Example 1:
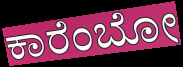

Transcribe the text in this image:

ಕಾರೆಂಬೋ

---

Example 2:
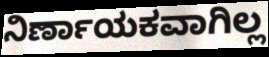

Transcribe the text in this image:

ನಿರ್ಣಾಯಕವಾಗಿಲ್ಲ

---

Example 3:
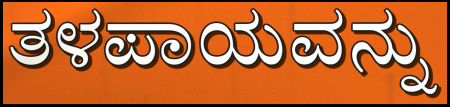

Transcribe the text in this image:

ತಳಪಾಯವನ್ನು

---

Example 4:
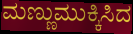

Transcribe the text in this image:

ಮಣ್ಣುಮುಕ್ಕಿಸಿದ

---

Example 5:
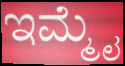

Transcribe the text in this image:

ಇಮ್ಮೈ